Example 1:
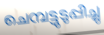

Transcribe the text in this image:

ചെമ്പട്ടുടുപ്പിച്ചു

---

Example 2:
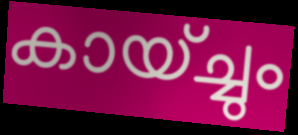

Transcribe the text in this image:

കായ്ച്ചും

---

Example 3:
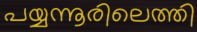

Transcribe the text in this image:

പയ്യന്നൂരിലെത്തി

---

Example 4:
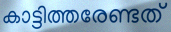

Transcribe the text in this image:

കാട്ടിത്തരേണ്ടത്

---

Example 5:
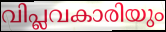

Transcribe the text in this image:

വിപ്ലവകാരിയും